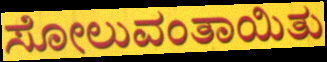
ಸೋಲುವಂತಾಯಿತು